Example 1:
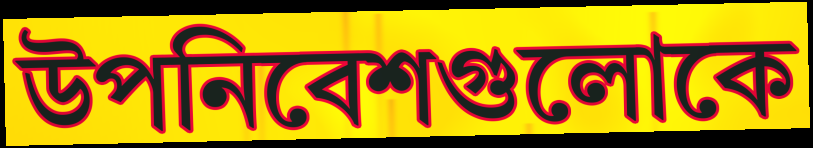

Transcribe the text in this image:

উপনিবেশগুলোকে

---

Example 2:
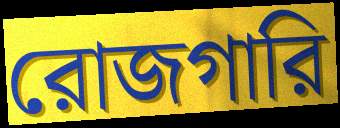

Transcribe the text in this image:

রোজগারি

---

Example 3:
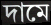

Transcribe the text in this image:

দামে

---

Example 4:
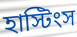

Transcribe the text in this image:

হাস্টিংস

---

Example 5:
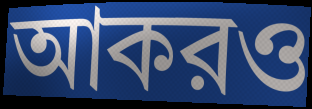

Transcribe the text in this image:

আকরও